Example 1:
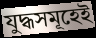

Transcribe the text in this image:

যুদ্ধসমূহেই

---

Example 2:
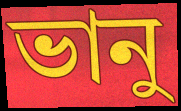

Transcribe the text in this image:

ভানু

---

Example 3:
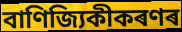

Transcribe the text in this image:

বাণিজ্যিকীকৰণৰ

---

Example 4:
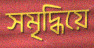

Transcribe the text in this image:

সমৃদ্ধিয়ে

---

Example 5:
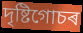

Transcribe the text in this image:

দৃষ্টিগোচৰ